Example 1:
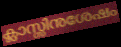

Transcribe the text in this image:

ക്ലാസ്സിനുശേഷം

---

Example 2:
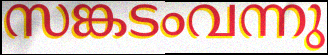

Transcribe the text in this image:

സങ്കടംവന്നു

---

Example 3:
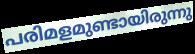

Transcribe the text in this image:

പരിമളമുണ്ടായിരുന്നു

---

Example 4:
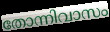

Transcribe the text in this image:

തോന്നിവാസം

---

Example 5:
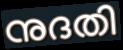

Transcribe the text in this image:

നുദതി